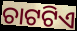
ଚାଟଟିଏ